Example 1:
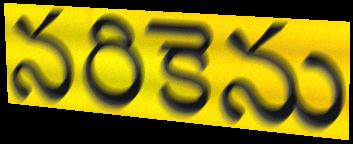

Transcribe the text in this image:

నరికెను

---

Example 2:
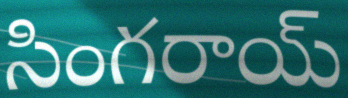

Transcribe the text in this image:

సింగరాయ్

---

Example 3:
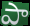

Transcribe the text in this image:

పా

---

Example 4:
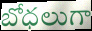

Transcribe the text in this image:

బోధలుగా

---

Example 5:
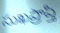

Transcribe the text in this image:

సుఖప్రాప్తి